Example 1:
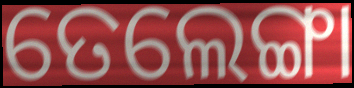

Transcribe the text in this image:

ତେଲେଙ୍ଗା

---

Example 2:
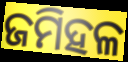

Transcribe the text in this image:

ଜମିହଳ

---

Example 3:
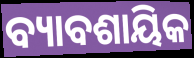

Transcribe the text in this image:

ବ୍ୟାବଶାୟିକ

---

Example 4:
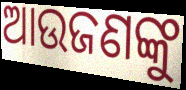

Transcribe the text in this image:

ଆଉଜଣଙ୍କୁ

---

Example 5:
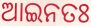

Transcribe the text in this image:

ଆଇନତଃ